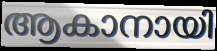
ആകാനായി